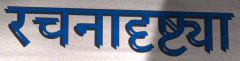
रचनादृष्ट्या